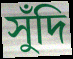
সুঁদি